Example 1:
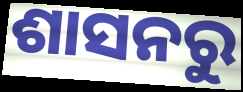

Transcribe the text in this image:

ଶାସନରୁ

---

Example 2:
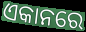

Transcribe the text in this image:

ଏକାନରେ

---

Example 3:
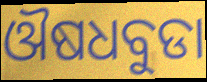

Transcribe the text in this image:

ଔଷଧବୁଡା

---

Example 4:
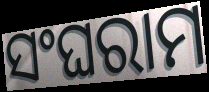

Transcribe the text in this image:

ସଂଘରାମ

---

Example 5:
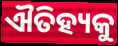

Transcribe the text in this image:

ଐତିହ୍ୟକୁ